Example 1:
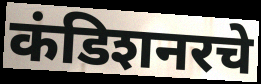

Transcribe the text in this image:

कंडिशनरचे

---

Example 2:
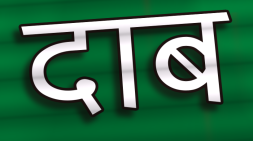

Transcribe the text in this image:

दाब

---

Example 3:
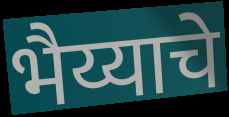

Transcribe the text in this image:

भैय्याचे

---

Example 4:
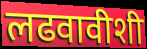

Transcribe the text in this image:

लढवावीशी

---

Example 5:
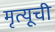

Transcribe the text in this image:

मृत्यूची